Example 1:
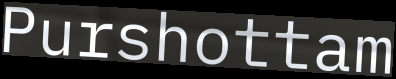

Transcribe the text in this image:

Purshottam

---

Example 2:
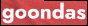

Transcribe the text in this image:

goondas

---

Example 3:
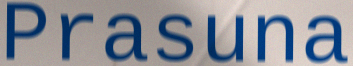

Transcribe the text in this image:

Prasuna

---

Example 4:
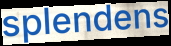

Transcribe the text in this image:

splendens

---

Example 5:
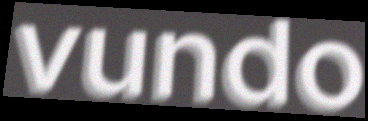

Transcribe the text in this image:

vundo